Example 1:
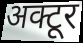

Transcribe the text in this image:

अक्टूर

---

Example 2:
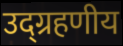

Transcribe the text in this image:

उद्ग्रहणीय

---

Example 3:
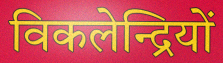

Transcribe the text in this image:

विकलेन्द्रियों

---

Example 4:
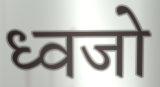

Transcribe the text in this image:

ध्वजो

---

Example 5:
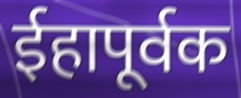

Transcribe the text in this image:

ईहापूर्वक